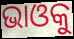
ଭାଓକୁ